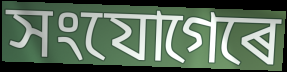
সংযোগেৰে